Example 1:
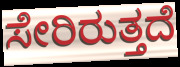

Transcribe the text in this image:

ಸೇರಿರುತ್ತದೆ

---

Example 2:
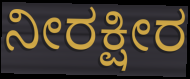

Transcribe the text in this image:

ನೀರಕ್ಷೀರ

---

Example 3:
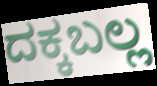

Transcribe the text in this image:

ದಕ್ಕಬಲ್ಲ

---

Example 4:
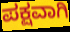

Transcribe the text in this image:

ಪಕ್ಷವಾಗಿ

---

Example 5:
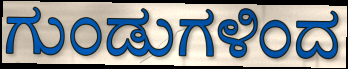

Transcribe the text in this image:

ಗುಂಡುಗಳಿಂದ